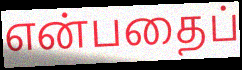
என்பதைப்